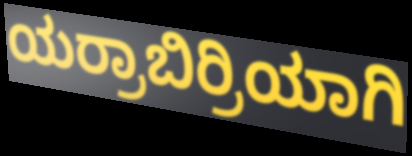
ಯರ್ರಾಬಿರ್ರಿಯಾಗಿ